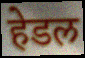
हेडल